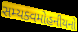
સમ્યક્વમોહનીયનો